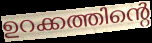
ഉറക്കത്തിന്റെ